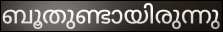
ബൂതുണ്ടായിരുന്നു